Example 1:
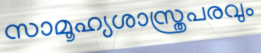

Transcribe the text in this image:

സാമൂഹ്യശാസ്ത്രപരവും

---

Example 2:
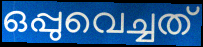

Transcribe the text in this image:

ഒപ്പുവെച്ചത്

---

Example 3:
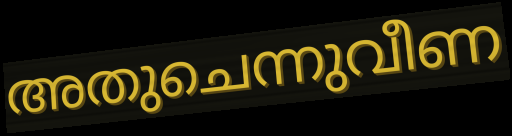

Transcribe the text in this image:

അതുചെന്നുവീണ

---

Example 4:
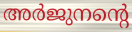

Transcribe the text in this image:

അർജുനന്റെ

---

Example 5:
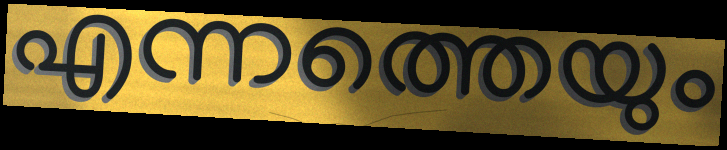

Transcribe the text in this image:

എന്നത്തെയും